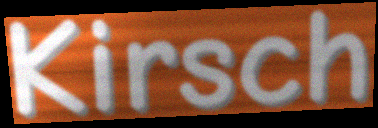
Kirsch